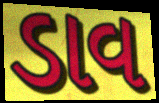
ડાવ